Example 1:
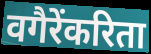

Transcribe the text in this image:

वगैरेंकरिता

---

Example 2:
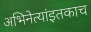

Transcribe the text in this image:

अभिनेत्यांइतकाच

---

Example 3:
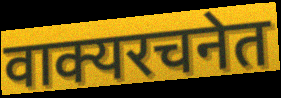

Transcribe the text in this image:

वाक्यरचनेत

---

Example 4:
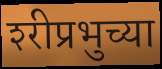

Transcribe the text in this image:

श्रीप्रभुच्या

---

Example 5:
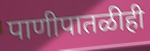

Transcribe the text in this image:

पाणीपातळीही